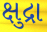
ક્ષુદ્રા